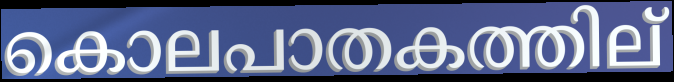
കൊലപാതകത്തില്